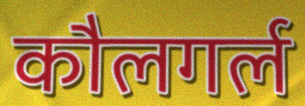
कौलगर्ल